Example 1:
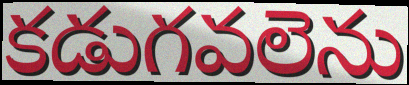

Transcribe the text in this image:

కడుగవలెను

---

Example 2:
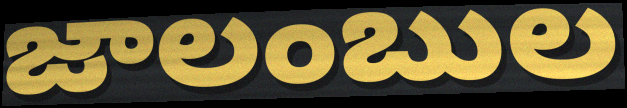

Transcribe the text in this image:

జాలంబుల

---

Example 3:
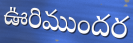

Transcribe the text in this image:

ఊరిముందర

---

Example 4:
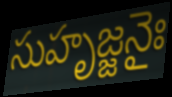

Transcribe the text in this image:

సుహృజ్జనైః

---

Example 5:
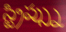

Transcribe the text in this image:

స్ట్రిప్స్ను